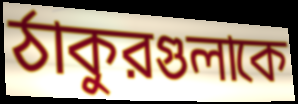
ঠাকুরগুলাকে